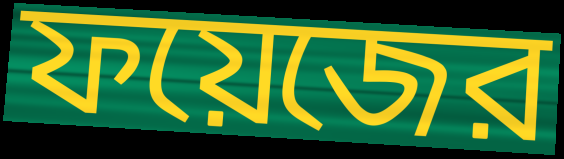
ফয়েজের